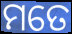
ମତେ